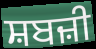
ਸ਼ਬਜ਼ੀ